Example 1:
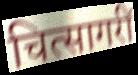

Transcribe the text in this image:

चित्सागरीं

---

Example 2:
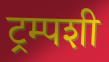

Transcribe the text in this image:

ट्रम्पशी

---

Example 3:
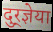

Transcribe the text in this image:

दुर्ज्ञेया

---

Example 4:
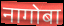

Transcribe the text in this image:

नागोबा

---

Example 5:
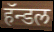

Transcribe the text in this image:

हॅन्डल